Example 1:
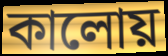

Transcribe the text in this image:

কালোয়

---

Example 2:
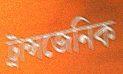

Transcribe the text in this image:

ট্রান্সজেনিক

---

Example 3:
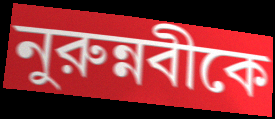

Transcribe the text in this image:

নুরুন্নবীকে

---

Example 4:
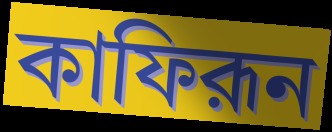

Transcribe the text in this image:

কাফিরূন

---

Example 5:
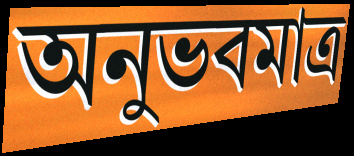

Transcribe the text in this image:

অনুভবমাত্র